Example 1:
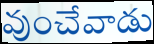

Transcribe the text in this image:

వుంచేవాడు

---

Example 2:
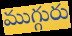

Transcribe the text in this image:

ముగ్గురు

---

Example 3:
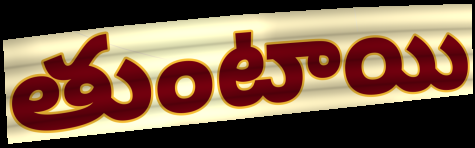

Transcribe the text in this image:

తుంటాయి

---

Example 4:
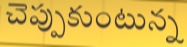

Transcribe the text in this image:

చెప్పుకుంటున్న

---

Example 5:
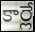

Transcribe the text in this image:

కార్లే